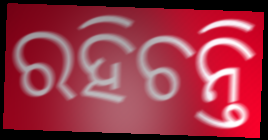
ରହିଚନ୍ତି